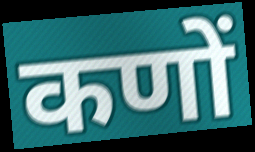
कणों